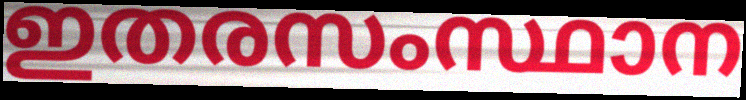
ഇതരസംസ്ഥാന